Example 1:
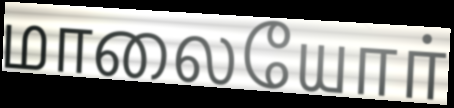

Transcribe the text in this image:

மாலையோர்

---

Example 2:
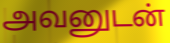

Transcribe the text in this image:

அவனுடன்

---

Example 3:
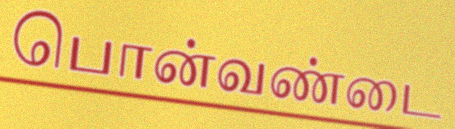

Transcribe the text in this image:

பொன்வண்டை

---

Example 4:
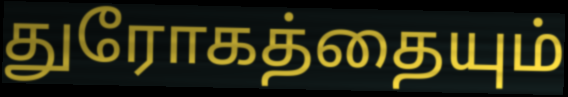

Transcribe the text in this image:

துரோகத்தையும்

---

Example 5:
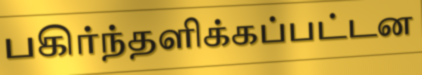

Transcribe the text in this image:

பகிர்ந்தளிக்கப்பட்டன